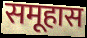
समूहास